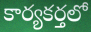
కార్యకర్తలో